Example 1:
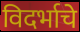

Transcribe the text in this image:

विदर्भाचे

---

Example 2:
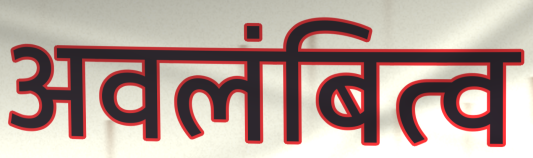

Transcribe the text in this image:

अवलंबित्व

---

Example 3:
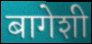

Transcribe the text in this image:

बागेशी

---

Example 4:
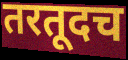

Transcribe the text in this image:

तरतूदच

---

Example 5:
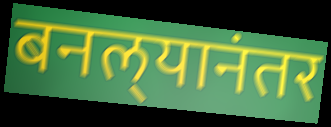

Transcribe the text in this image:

बनल्यानंतर